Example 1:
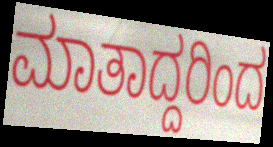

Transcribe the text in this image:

ಮಾತಾದ್ದರಿಂದ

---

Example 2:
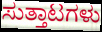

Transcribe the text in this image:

ಸುತ್ತಾಟಗಳು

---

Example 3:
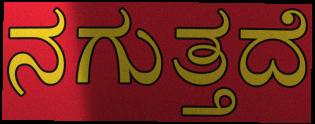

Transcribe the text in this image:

ನಗುತ್ತದೆ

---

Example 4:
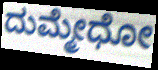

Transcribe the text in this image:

ದುಮ್ಮೇಧೋ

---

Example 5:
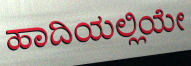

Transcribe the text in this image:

ಹಾದಿಯಲ್ಲಿಯೇ